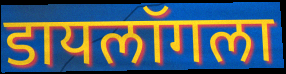
डायलॉगला